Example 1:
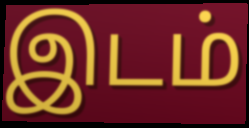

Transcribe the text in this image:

இடம்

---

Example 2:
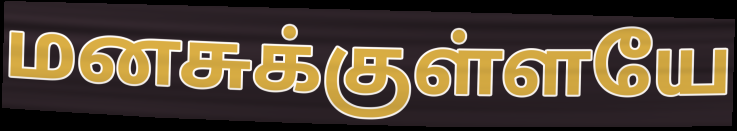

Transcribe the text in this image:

மனசுக்குள்ளயே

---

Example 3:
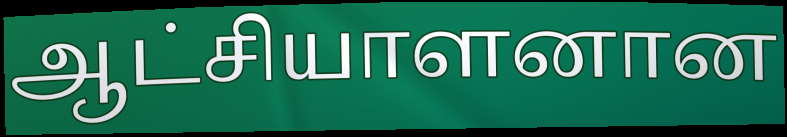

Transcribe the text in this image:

ஆட்சியாளனான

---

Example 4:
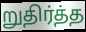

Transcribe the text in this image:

றுதிர்த்த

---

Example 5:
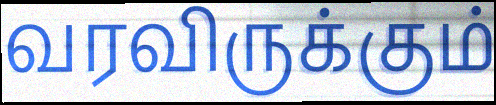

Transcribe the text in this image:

வரவிருக்கும்